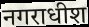
नगराधीश